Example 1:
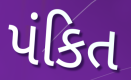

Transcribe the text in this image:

પંકિત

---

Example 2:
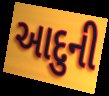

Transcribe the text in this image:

આદુની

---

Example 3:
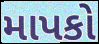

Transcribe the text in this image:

માપકો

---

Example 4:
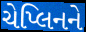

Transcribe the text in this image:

ચેપ્લિનને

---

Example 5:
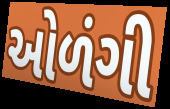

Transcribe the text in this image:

ઓળંગી